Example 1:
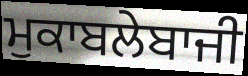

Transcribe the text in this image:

ਮੁਕਾਬਲੇਬਾਜੀ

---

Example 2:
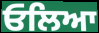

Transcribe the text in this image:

ਓਲਿਆ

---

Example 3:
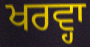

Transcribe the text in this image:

ਖਰਵ੍ਹਾ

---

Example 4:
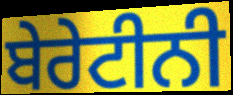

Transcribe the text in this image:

ਬੇਰੇਟੀਨੀ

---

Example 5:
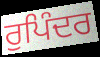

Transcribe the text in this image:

ਰੁਪਿੰਦਰ